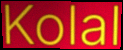
Kolal